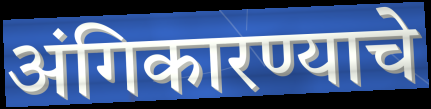
अंगिकारण्याचे